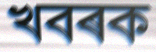
খবৰক